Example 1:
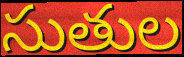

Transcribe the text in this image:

సుతుల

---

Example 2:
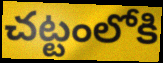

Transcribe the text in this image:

చట్టంలోకి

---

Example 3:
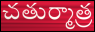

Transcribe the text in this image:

చతుర్మాత్ర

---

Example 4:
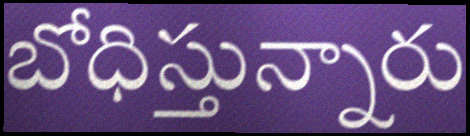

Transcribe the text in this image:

బోధిస్తున్నారు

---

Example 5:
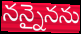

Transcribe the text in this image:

నన్నైనను